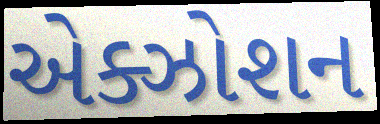
એક્ઝોશન